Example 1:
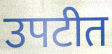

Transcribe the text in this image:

उपटीत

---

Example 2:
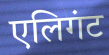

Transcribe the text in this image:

एलिगंट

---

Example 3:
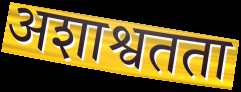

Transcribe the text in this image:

अशाश्वतता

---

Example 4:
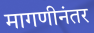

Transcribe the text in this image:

मागणीनंतर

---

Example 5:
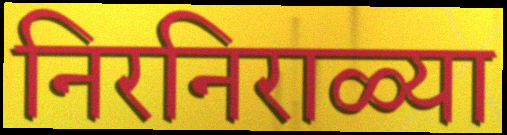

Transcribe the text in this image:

निरनिराळ्या